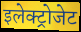
इलेक्ट्रोजेट